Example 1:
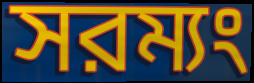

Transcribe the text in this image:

সরম্যং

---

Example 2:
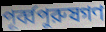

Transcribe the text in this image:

পূর্ব্বপুরুষগণ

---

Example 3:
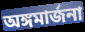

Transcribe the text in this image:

অঙ্গমার্জনা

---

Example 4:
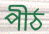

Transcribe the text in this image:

পীঠ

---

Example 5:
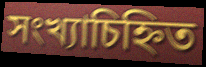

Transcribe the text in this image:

সংখ্যাচিহ্নিত